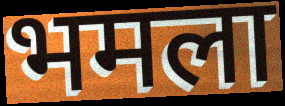
भमला